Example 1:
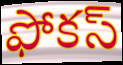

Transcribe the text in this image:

ఫోకస్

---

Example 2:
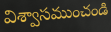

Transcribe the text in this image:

విశ్వాసముంచండి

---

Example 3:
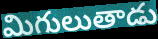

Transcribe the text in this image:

మిగులుతాడు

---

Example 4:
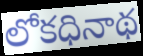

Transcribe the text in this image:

లోకధినాథ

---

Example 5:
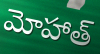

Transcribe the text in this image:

మోహాత్